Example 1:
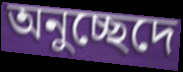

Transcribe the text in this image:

অনুচ্ছেদে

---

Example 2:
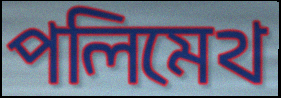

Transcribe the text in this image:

পলিমেথ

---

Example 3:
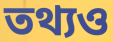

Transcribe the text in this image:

তথ্যও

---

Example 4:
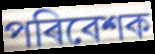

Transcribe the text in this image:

পৰিবেশক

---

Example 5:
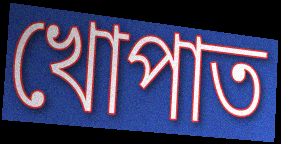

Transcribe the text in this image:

খোপাত